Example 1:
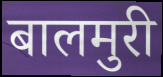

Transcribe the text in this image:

बालमुरी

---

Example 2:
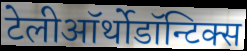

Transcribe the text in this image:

टेलीऑर्थोडॉन्टिक्स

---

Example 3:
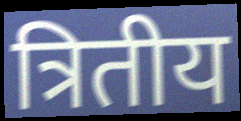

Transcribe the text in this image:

त्रितीय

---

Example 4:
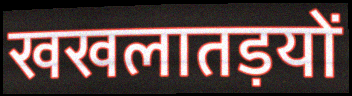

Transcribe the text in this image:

खखलातड़यों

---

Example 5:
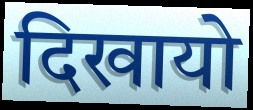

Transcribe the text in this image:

दिखायो